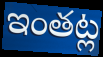
ఇంతట్ల